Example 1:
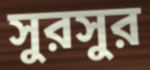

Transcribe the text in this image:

সুরসুর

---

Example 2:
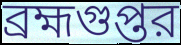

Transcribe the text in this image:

ব্রহ্মগুপ্তর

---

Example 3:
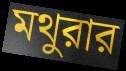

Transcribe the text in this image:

মথুরার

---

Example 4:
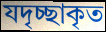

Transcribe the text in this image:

যদৃচ্ছাকৃত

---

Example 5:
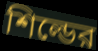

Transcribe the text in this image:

শিল্ডের